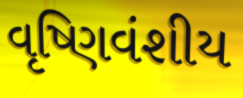
વૃષ્ણિવંશીય